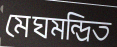
মেঘমন্দ্রিত